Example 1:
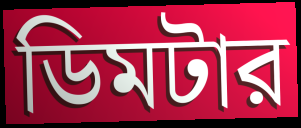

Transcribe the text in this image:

ডিমটার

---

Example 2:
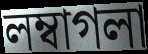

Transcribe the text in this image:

লম্বাগলা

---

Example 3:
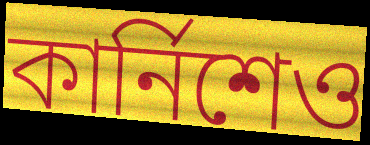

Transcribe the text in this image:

কার্নিশেও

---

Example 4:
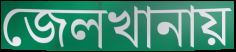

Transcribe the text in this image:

জেলখানায়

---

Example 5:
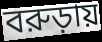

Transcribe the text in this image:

বরুড়ায়